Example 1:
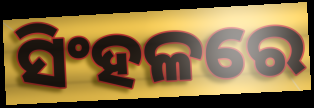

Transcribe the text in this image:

ସିଂହଳରେ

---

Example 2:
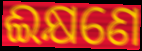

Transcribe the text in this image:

ଈକ୍ଷଣେ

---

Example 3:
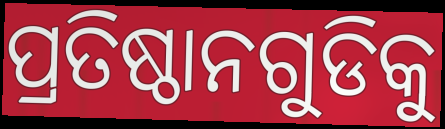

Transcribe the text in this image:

ପ୍ରତିଷ୍ଠାନଗୁଡିକୁ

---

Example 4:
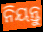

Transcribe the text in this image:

ନିୟନ୍ତୁ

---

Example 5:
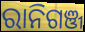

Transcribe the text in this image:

ରାନିଗଞ୍ଜ